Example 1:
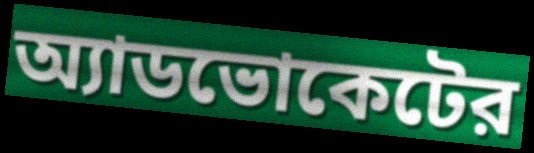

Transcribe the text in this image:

অ্যাডভোকেটের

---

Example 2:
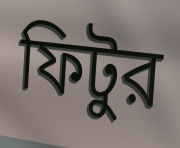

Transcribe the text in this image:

ফিটুর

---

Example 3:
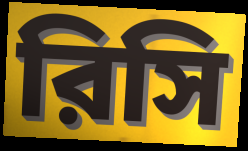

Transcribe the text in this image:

রিসি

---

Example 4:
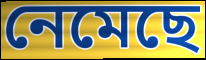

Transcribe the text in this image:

নেমেছে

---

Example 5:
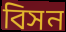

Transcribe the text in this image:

বিসন